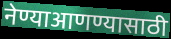
नेण्याआणण्यासाठी